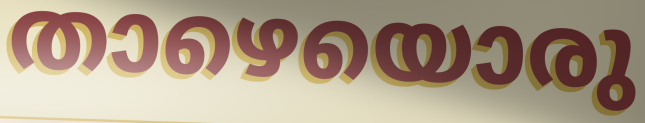
താഴെയൊരു